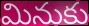
మినుకు